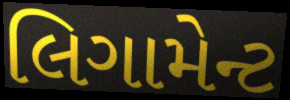
લિગામેન્ટ